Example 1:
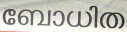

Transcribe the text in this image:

ബോധിത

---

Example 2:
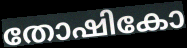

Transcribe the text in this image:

തോഷികോ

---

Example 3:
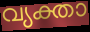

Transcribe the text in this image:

വ്യക്താ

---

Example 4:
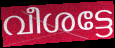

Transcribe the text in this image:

വീശട്ടേ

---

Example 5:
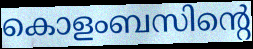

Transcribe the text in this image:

കൊളംബസിന്റെ